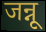
जन्नू